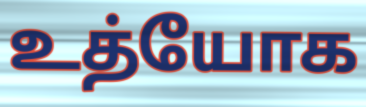
உத்யோக